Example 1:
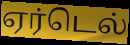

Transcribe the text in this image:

ஏர்டெல்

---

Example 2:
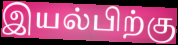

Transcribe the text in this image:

இயல்பிற்கு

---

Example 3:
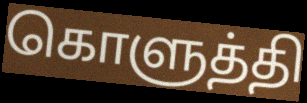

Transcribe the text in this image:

கொளுத்தி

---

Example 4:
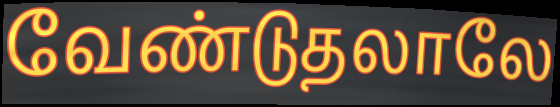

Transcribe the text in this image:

வேண்டுதலாலே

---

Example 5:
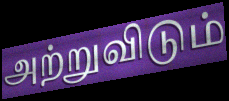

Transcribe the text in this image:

அற்றுவிடும்